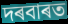
দৰবাৰত